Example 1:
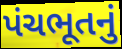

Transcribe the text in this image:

પંચભૂતનું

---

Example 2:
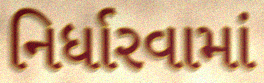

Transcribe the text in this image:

નિર્ધારવામાં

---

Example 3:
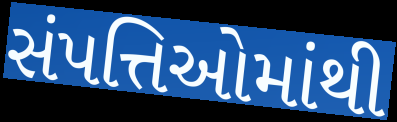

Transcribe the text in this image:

સંપત્તિઓમાંથી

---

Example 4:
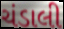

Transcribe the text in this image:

ચંડાલી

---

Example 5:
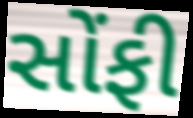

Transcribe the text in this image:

સોંફી